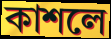
কাশলে